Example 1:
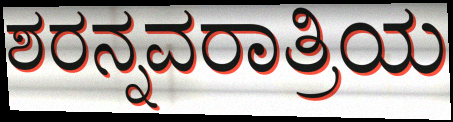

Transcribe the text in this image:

ಶರನ್ನವರಾತ್ರಿಯ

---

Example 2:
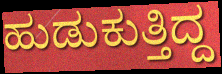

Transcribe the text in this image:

ಹುಡುಕುತ್ತಿದ್ದ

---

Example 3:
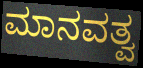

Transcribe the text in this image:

ಮಾನವತ್ವ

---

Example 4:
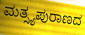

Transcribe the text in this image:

ಮತ್ಸ್ಯಪುರಾಣದ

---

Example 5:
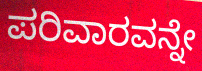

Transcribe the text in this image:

ಪರಿವಾರವನ್ನೇ